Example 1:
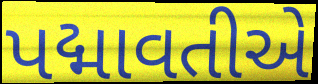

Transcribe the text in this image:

પદ્માવતીએ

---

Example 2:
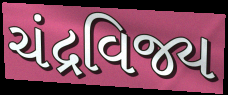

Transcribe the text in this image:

ચંદ્રવિજ્ય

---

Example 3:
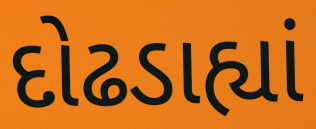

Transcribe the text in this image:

દોઢડાહ્યાં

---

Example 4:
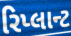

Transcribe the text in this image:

રિપ્લાન્ટ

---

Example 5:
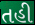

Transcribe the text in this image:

તહી